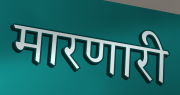
मारणारी